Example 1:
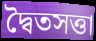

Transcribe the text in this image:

দ্বৈতসত্তা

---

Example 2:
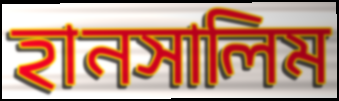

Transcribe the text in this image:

হানসালিম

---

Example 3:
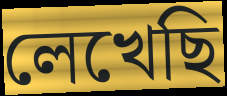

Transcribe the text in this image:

লেখেছি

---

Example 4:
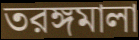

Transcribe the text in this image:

তরঙ্গমালা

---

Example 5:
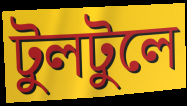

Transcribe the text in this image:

টুলটুলে